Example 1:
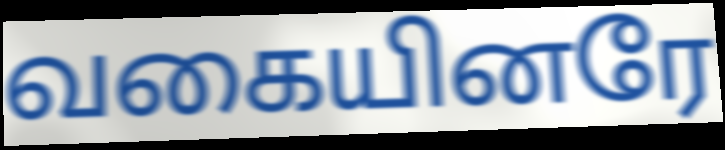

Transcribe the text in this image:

வகையினரே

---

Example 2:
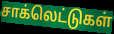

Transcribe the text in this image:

சாக்லெட்டுகள்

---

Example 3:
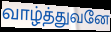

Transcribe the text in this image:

வாழ்த்துவனே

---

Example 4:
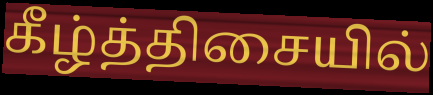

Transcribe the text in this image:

கீழ்த்திசையில்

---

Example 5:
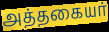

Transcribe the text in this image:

அத்தகையர்